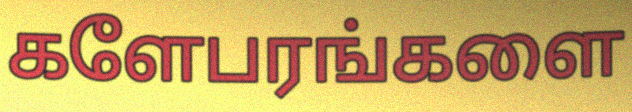
களேபரங்களை